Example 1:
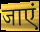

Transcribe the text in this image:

जाएं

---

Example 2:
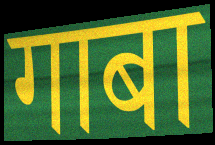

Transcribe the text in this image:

गाबा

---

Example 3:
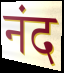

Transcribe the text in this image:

नंद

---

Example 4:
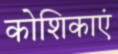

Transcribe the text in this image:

कोशिकाएं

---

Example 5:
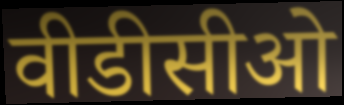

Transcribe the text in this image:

वीडीसीओ